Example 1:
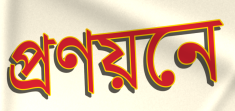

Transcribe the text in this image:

প্ৰণয়নে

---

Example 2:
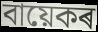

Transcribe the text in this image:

বায়েকৰ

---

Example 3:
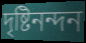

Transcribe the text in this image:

দৃষ্টিনন্দন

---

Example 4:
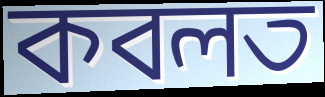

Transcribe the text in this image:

কবলত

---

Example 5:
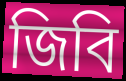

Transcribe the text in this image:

জিবি